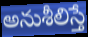
అనుశీలిస్తే